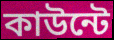
কাউন্টে